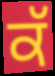
ਕੱ